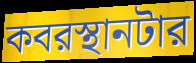
কবরস্থানটার